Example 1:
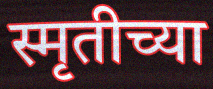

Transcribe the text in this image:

स्मृतीच्या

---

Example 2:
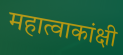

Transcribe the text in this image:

महात्वाकांक्षी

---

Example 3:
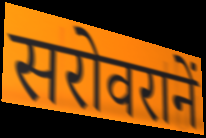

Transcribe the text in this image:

सरोवरानें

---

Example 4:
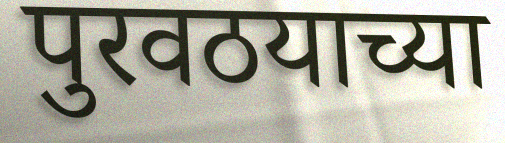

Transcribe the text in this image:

पुरवठयाच्या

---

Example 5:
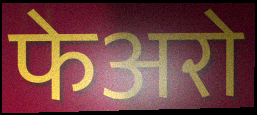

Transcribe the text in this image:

फेअरो